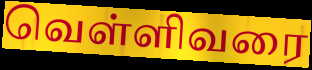
வெள்ளிவரை